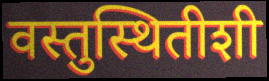
वस्तुस्थितीशी